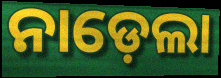
ନାଡ଼େଲା